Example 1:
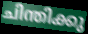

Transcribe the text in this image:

ചിന്തിക്കു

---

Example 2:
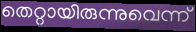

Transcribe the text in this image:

തെറ്റായിരുന്നുവെന്ന്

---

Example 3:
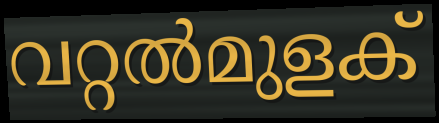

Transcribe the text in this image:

വറ്റൽമുളക്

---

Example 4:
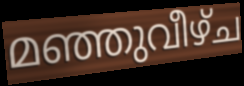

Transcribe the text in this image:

മഞ്ഞുവീഴ്ച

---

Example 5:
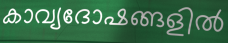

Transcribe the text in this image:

കാവ്യദോഷങ്ങളിൽ